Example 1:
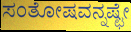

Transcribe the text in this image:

ಸಂತೋಷವನ್ನಷ್ಟೇ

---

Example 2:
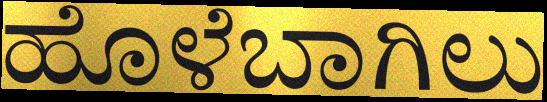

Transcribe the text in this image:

ಹೊಳೆಬಾಗಿಲು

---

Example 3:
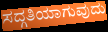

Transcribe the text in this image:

ಸದ್ಗತಿಯಾಗುವುದು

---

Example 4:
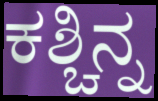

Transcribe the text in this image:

ಕಶ್ಚಿನ್ನ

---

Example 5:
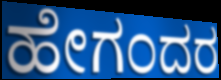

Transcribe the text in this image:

ಹೇಗಂದರ